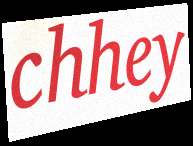
chhey